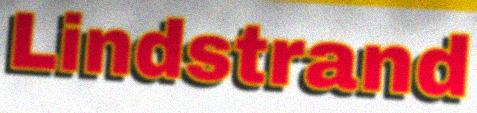
Lindstrand